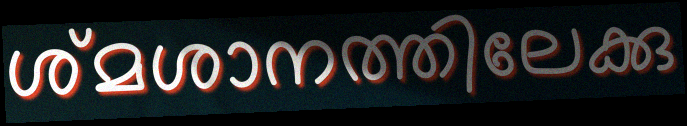
ശ്മശാനത്തിലേക്കു